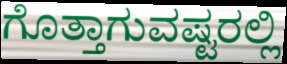
ಗೊತ್ತಾಗುವಷ್ಟರಲ್ಲಿ